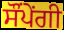
ਸੌਂਪੇਂਗੀ